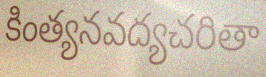
కింత్యనవద్యచరితా